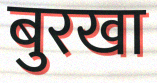
बुरखा